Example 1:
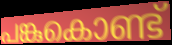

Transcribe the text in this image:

പങ്കുകൊണ്ട്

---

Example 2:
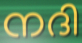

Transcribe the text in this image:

നദി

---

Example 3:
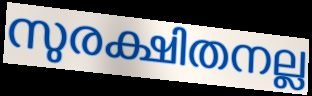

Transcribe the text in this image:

സുരക്ഷിതനല്ല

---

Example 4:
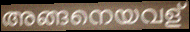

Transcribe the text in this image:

അങ്ങനെയവള്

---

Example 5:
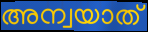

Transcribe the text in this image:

അന്വയാത്